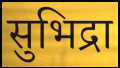
सुभिद्रा